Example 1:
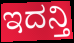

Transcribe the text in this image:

ಇದನ್ತಿ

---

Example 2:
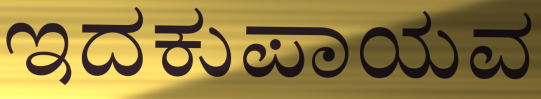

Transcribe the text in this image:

ಇದಕುಪಾಯವ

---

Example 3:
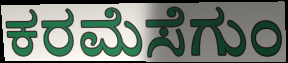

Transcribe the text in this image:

ಕರಮೆಸೆಗುಂ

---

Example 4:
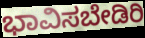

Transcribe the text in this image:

ಭಾವಿಸಬೇಡಿರಿ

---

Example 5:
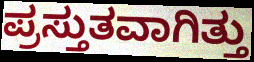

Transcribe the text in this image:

ಪ್ರಸ್ತುತವಾಗಿತ್ತು